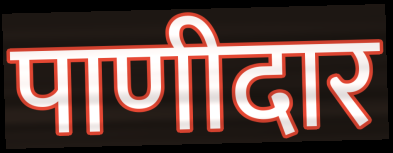
पाणीदार